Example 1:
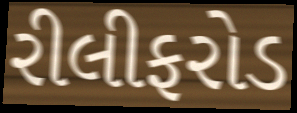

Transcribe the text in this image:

રીલીફરોડ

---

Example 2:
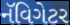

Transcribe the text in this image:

નૅવિગેટર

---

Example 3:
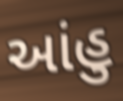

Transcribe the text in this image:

આંહુ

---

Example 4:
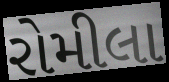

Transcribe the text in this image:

રોમીલા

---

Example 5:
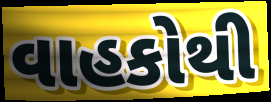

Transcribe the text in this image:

વાહકોથી